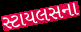
સ્ટાયલસના